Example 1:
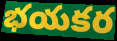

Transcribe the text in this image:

భయకర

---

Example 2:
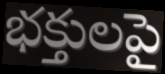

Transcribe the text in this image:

భక్తులపై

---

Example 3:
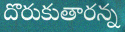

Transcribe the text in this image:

దొరుకుతారన్న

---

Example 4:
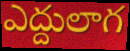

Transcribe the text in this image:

ఎద్దులాగ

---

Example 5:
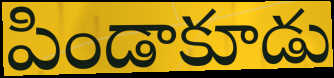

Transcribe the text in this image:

పిండాకూడు